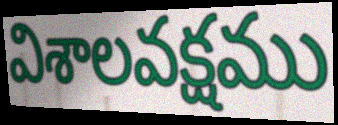
విశాలవక్షము